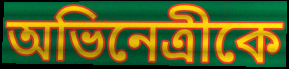
অভিনেত্রীকে